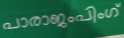
പാരാജംപിംഗ്